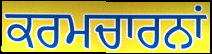
ਕਰਮਚਾਰਨਾਂ